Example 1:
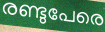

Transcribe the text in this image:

രണ്ടുപേരെ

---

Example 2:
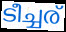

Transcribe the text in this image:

ടീച്ചര്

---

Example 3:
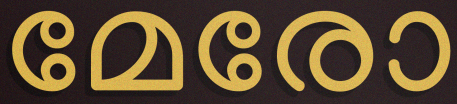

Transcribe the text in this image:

മേരോ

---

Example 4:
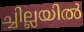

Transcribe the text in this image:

ച്ചില്ലയിൽ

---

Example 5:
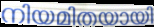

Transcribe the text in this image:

നിയമിതയായി